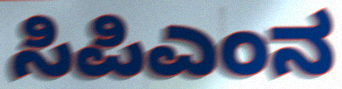
ಸಿಪಿಎಂನ